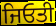
ਜਿਓਤੀ